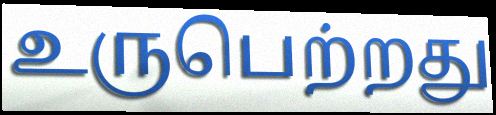
உருபெற்றது